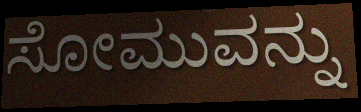
ಸೋಮುವನ್ನು